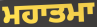
ਮਹਾਤਮਾ